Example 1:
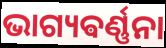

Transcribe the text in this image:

ଭାଗ୍ୟଵର୍ଣ୍ଣନା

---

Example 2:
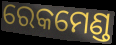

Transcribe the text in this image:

ରେକମେଣ୍ଡ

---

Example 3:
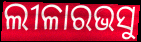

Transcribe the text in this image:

ଲୀଳାରଭସୁ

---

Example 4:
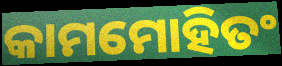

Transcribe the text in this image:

କାମମୋହିତଂ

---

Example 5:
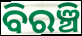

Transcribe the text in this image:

ବିରଞ୍ଚି